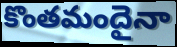
కొంతమందైనా